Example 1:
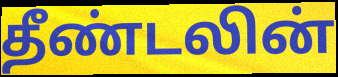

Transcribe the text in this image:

தீண்டலின்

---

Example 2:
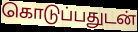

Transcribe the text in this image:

கொடுப்பதுடன்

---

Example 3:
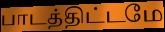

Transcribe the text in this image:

பாடத்திட்டமே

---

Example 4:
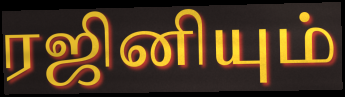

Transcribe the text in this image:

ரஜினியும்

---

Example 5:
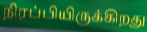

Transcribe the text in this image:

நிரப்பியிருக்கிறது